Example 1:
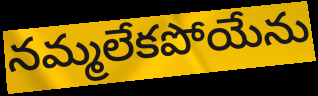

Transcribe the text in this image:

నమ్మలేకపోయేను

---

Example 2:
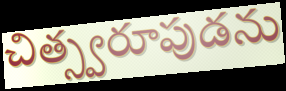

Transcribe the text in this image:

చిత్స్వరూపుడను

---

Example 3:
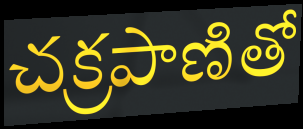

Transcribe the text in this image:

చక్రపాణితో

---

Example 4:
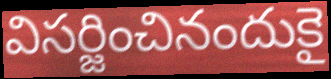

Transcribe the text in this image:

విసర్జించినందుకై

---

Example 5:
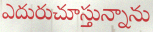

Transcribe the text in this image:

ఎదురుచూస్తున్నాను